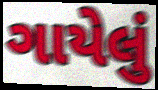
ગાયેલું